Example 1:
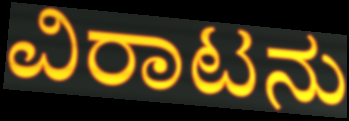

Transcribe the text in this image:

ವಿರಾಟನು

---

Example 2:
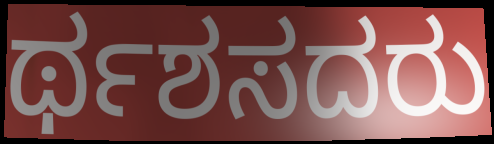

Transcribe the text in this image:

ರ್ಥಶಸದರು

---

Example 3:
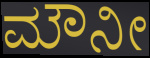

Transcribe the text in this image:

ಮೌನೀ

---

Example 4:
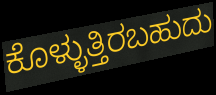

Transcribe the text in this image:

ಕೊಳ್ಳುತ್ತಿರಬಹುದು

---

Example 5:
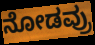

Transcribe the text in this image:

ನೋಡವ್ರು